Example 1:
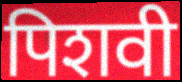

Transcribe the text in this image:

पिशवी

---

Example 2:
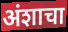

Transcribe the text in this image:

अंशाचा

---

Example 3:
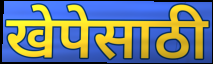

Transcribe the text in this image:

खेपेसाठी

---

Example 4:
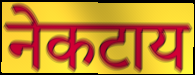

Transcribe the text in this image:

नेकटाय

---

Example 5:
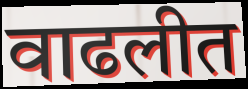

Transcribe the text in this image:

वाढलीत